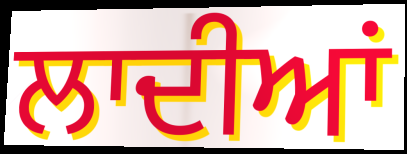
ਲਾਦੀਆਂ